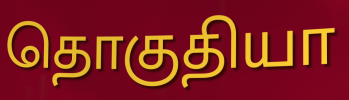
தொகுதியா